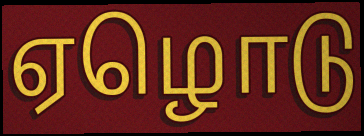
ஏழொடு